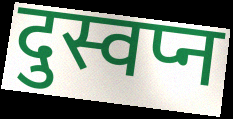
दुस्वप्न